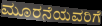
ಮೂರನೆಯವರಿಗೆ